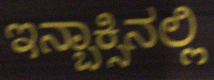
ಇನ್ಬಾಕ್ಸಿನಲ್ಲಿ